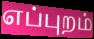
எப்புறம்